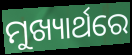
ମୁଖ୍ୟାର୍ଥରେ